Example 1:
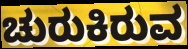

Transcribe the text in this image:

ಚುರುಕಿರುವ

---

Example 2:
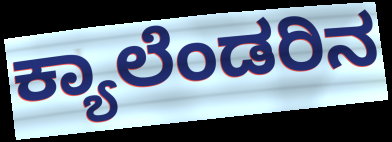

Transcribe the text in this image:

ಕ್ಯಾಲೆಂಡರಿನ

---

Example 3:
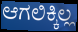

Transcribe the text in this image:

ಆಗಲಿಕ್ಕಿಲ್ಲ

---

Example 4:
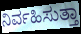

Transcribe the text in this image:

ನಿರ್ವಹಿಸುತ್ತಾ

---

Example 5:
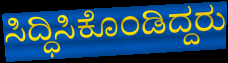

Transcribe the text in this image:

ಸಿದ್ಧಿಸಿಕೊಂಡಿದ್ದರು